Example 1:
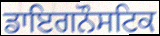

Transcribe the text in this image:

ਡਾਇਗਨੌਸਟਿਕ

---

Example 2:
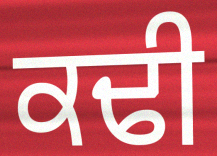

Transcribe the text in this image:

ਕਢੀ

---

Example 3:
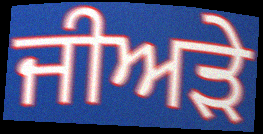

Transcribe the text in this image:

ਜੀਅੜੇ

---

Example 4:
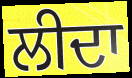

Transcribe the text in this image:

ਲੀਦਾ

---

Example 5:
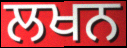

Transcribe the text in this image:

ਲਖਨ